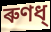
ৰুণধ্